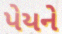
પેયને